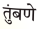
तुंबणे